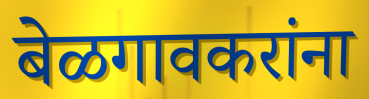
बेळगावकरांना